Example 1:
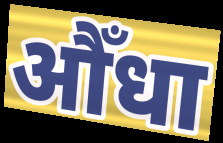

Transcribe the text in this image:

औँधा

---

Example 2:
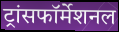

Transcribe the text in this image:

ट्रांसफॉर्मेशनल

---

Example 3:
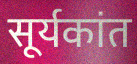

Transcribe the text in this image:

सूर्यकांत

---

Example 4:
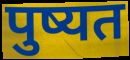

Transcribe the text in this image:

पुष्यत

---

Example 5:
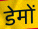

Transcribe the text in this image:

डेमों